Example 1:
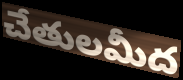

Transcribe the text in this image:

చేతులమీద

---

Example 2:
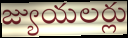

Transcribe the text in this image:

జ్యుయలర్లు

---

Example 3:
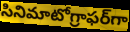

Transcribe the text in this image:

సినిమాటోగ్రాఫర్‌గా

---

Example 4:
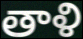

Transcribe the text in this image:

తాళి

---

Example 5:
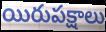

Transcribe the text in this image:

యిరుపక్షాలు